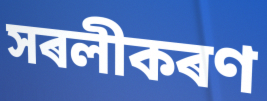
সৰলীকৰণ